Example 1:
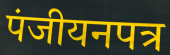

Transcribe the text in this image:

पंजीयनपत्र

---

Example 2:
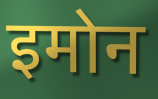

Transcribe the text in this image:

इमोन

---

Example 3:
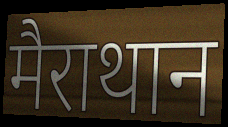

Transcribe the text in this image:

मैराथान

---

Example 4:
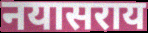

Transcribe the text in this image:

नयासराय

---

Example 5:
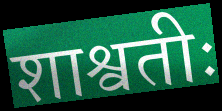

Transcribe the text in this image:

शाश्वतीः